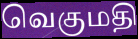
வெகுமதி